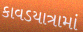
કાવડયાત્રામાં